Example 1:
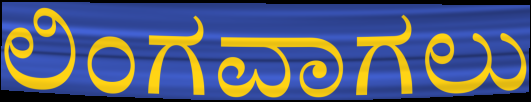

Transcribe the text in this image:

ಲಿಂಗವಾಗಲು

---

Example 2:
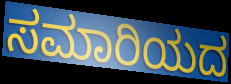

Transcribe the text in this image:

ಸಮಾರಿಯದ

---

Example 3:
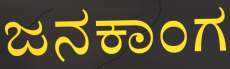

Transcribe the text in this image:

ಜನಕಾಂಗ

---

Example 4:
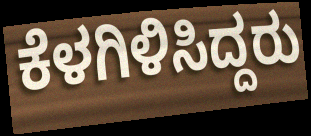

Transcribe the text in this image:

ಕೆಳಗಿಳಿಸಿದ್ದರು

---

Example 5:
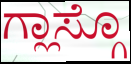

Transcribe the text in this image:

ಗ್ಲಾಸ್ಗೊ